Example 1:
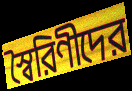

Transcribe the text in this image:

স্বৈরিণীদের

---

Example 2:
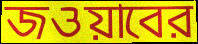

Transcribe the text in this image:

জওয়াবের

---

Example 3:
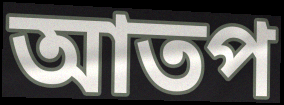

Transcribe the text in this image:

আতপ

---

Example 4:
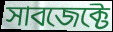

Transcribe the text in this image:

সাবজেক্টে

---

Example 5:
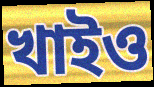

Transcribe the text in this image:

খাইও